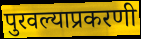
पुरवल्याप्रकरणी